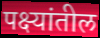
पक्ष्यांतील